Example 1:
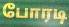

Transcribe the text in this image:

போரடி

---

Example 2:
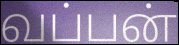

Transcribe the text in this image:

வப்பன்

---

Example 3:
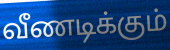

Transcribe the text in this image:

வீணடிக்கும்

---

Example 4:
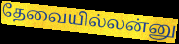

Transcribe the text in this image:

தேவையில்லன்னு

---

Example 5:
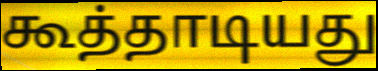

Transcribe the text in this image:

கூத்தாடியது